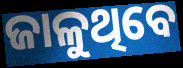
ଜାଳୁଥିବେ